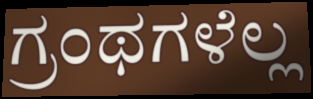
ಗ್ರಂಥಗಳೆಲ್ಲ